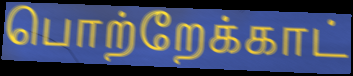
பொற்றேக்காட்